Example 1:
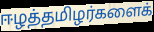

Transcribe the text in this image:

ஈழத்தமிழர்களைக்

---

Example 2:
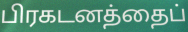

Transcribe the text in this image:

பிரகடனத்தைப்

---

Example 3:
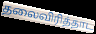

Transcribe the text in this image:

தலைவிரித்தாட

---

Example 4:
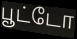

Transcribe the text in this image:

பூட்டோ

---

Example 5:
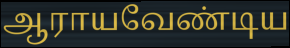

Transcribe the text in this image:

ஆராயவேண்டிய